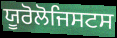
ਯੂਰੋਲੋਜਿਸਟਸ